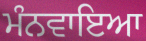
ਮੰਨਵਾਇਆ